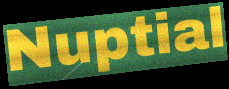
Nuptial